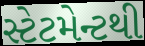
સ્ટેટમેન્ટથી